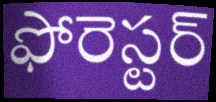
ఫోరెస్టర్